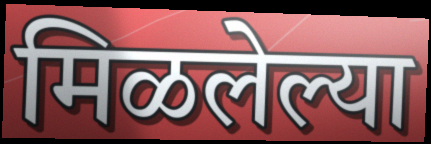
मिळलेल्या